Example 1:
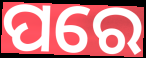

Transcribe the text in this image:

ପରେ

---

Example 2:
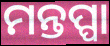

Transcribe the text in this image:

ମନ୍ତପ୍ପା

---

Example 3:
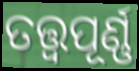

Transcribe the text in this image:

ତତ୍ତ୍ୱପୂର୍ଣ୍ଣ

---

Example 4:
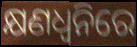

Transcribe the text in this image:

କ୍ଷଣଧ୍ୱନିରେ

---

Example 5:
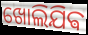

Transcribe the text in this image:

ଖୋଲିଯିଵ